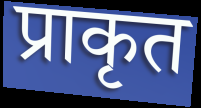
प्राकृत